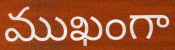
ముఖంగా